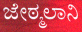
ಜೇಠ್ಮಲಾನಿ